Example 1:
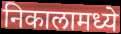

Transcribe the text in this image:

निकालामध्ये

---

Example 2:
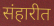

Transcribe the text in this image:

संहारीत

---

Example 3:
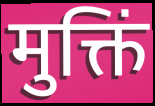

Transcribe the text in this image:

मुक्तिं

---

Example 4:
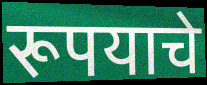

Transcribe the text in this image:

रूपयाचे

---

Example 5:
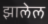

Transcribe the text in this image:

झालेल